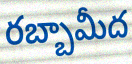
రబ్బామీద